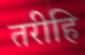
तरीहि